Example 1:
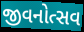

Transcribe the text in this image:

જીવનોત્સવ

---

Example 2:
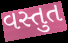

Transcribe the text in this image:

વસ્તુત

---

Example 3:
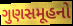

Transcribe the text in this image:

ગુણસમૂહનો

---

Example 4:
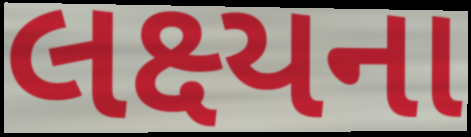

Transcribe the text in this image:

લક્ષ્યના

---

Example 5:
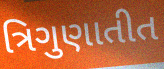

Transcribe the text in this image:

ત્રિગુણાતીત